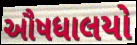
ઔષધાલયો